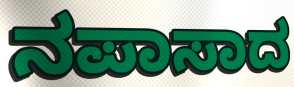
ನಪಾಸಾದ